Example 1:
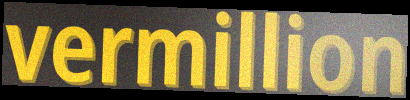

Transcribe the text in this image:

vermillion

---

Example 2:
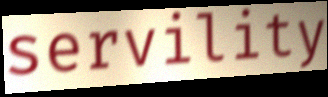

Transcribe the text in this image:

servility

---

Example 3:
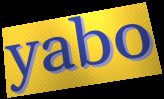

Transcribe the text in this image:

yabo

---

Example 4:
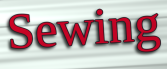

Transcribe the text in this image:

Sewing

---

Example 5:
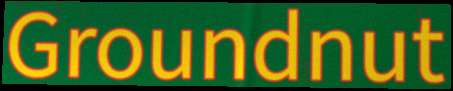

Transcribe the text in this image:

Groundnut